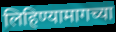
लिहिण्यामागच्या